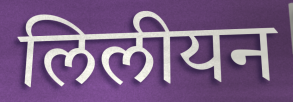
लिलीयन